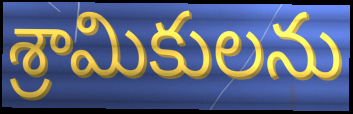
శ్రామికులను